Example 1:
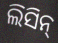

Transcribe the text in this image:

ଲିସିନ୍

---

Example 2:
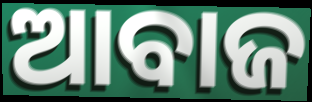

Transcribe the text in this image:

ଆବାଜ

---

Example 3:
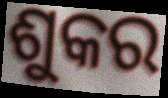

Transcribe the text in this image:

ଶୁକର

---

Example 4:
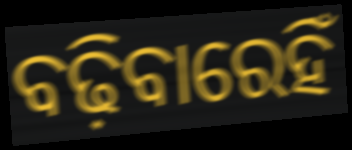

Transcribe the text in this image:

ବଢ଼ିବାରେହିଁ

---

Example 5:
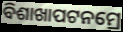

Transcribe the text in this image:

ବିଶାଖାପଟନମ୍ରେ